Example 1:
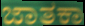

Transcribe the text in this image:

ಜಾತಕಾ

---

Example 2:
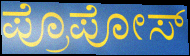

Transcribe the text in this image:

ಪ್ರೊಪೋಸ್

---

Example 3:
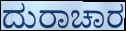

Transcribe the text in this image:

ದುರಾಚಾರ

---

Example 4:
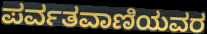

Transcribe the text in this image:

ಪರ್ವತವಾಣಿಯವರ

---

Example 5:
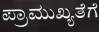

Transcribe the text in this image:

ಪ್ರಾಮುಖ್ಯತೆಗೆ